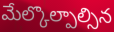
మేల్కొల్పాల్సిన